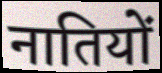
नातियों